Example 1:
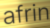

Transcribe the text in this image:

afrin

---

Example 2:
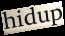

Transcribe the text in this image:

hidup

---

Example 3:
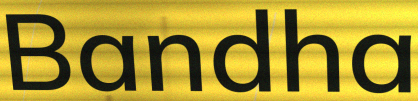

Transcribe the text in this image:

Bandha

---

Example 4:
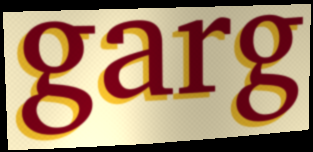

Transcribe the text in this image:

garg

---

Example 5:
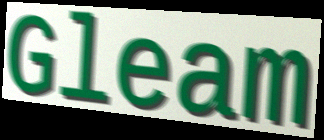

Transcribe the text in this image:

Gleam